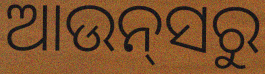
ଆଉନ୍‍ସରୁ